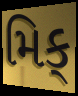
મિક્